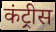
कंट्रीस